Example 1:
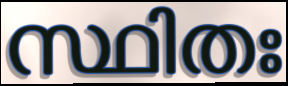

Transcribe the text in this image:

സ്ഥിതഃ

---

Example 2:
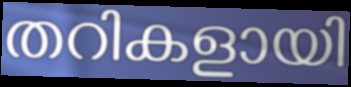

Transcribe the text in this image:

തറികളായി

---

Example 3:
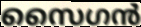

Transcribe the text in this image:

സൈഗൻ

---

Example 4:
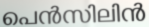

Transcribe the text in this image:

പെൻസിലിൻ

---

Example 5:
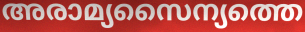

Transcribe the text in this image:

അരാമ്യസൈന്യത്തെ